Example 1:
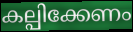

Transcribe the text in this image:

കല്പിക്കേണം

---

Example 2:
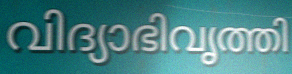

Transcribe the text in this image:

വിദ്യാഭിവൃത്തി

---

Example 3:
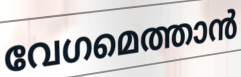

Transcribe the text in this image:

വേഗമെത്താൻ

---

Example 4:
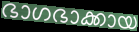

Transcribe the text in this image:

ഭാഗഭാക്കായ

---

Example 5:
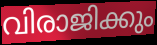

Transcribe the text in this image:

വിരാജിക്കും